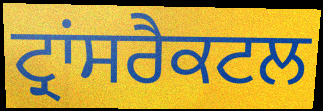
ਟ੍ਰਾਂਸਰੈਕਟਲ